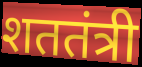
शततंत्री